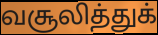
வசூலித்துக்